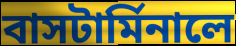
বাসটার্মিনালে